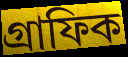
গ্ৰাফিক